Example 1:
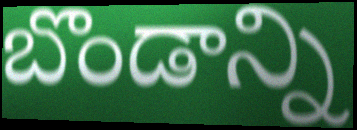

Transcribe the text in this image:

బొండాన్ని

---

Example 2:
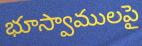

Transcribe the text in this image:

భూస్వాములపై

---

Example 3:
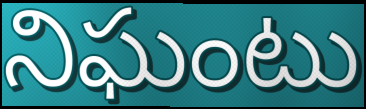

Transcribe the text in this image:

నిఘంటు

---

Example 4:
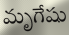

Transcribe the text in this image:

మృగేషు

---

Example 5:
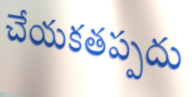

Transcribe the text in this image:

చేయకతప్పదు